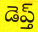
డెప్త్